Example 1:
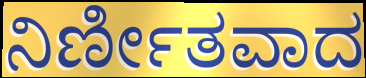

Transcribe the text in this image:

ನಿರ್ಣೀತವಾದ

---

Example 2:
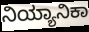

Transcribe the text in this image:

ನಿಯ್ಯಾನಿಕಾ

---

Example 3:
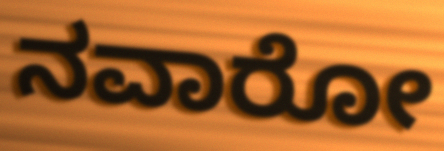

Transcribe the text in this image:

ನವಾರೋ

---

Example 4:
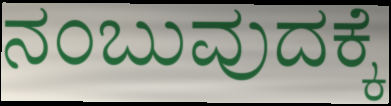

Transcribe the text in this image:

ನಂಬುವುದಕ್ಕೆ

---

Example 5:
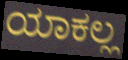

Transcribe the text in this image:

ಯಾಕಲ್ಲ